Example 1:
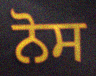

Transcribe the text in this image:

ਨੋਸ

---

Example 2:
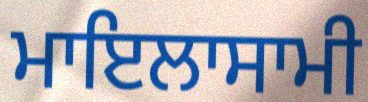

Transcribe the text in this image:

ਮਾਇਲਾਸਾਮੀ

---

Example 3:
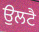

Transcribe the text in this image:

ਉਲਟੈ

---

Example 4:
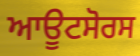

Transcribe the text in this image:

ਆਊਟਸੋਰਸ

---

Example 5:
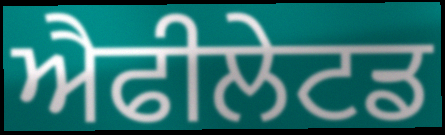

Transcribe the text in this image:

ਐਫੀਲੇਟਡ